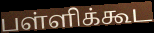
பள்ளிக்கூட